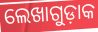
ଲେଖାଗୁଡ଼ାକ